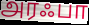
அரஃபா